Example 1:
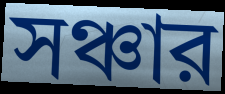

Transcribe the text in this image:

সঞ্চার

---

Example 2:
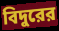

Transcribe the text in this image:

বিদুরের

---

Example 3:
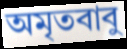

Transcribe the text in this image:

অমৃতবাবু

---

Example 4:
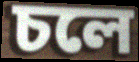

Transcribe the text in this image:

চলে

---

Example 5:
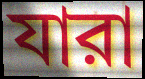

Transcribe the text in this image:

যারা